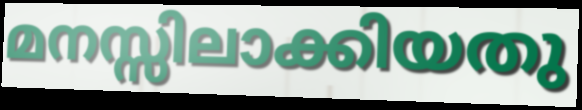
മനസ്സിലാക്കിയതു